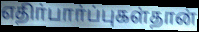
எதிர்பார்ப்புகள்தான்